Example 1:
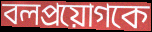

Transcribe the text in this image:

বলপ্রয়োগকে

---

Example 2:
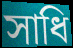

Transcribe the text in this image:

সাধি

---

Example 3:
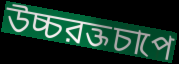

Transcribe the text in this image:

উচ্চরক্তচাপে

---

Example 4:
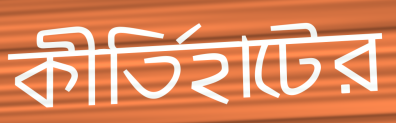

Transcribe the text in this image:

কীর্তিহাটের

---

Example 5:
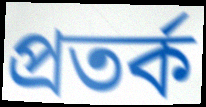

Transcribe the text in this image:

প্রতর্ক